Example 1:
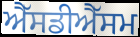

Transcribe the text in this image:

ਐੱਸਡੀਐੱਸਮ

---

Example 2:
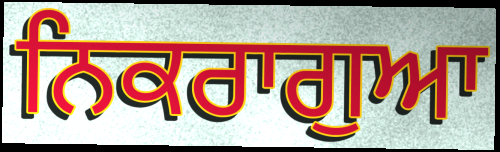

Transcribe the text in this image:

ਨਿਕਰਾਗੁਆ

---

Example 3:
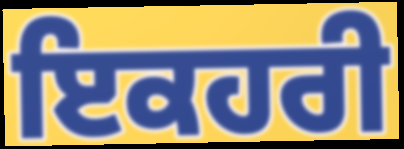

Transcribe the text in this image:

ਇਕਹਰੀ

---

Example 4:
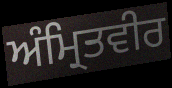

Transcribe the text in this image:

ਅੰਮ੍ਰਿਤਵੀਰ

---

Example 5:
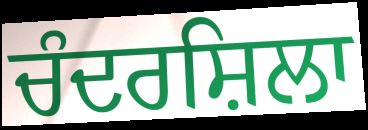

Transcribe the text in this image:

ਚੰਦਰਸ਼ਿਲਾ